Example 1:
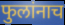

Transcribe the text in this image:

फुलांनाच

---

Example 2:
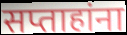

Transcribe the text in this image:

सप्ताहांना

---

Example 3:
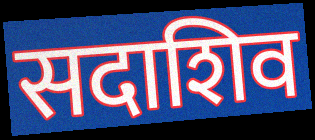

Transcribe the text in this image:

सदाशिव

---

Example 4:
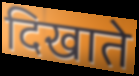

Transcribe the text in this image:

दिखाते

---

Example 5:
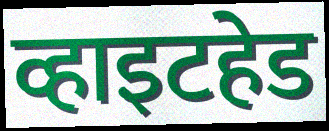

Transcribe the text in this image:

व्हाइटहेड